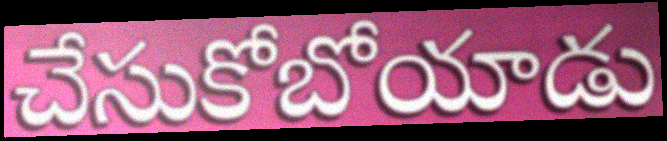
చేసుకోబోయాడు